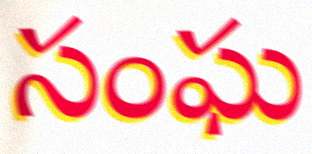
సంఘ